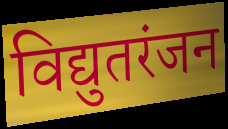
विद्युतरंजन